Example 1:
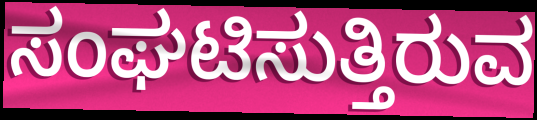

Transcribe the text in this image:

ಸಂಘಟಿಸುತ್ತಿರುವ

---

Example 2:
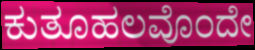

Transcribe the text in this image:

ಕುತೂಹಲವೊಂದೇ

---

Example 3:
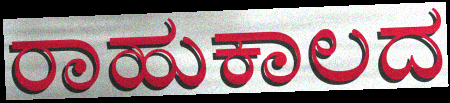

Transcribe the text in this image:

ರಾಹುಕಾಲದ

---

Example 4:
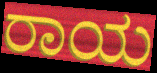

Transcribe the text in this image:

ರಾಯ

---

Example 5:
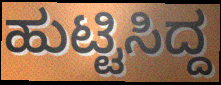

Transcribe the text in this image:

ಹುಟ್ಟಿಸಿದ್ದ